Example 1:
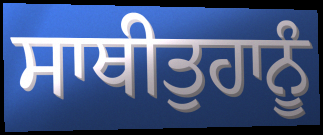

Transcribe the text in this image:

ਸਾਥੀਤੁਹਾਨੂੰ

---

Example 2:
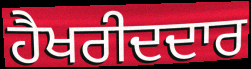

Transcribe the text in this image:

ਹੈਖਰੀਦਦਾਰ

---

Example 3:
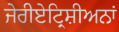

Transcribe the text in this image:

ਜੇਰੀਏਟ੍ਰਿਸ਼ੀਅਨਾਂ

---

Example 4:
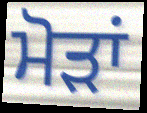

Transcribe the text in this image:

ਮੋੜਾਂ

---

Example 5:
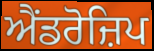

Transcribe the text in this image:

ਐਂਡਰੋਜ਼ਿਪ